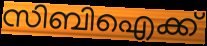
സിബിഐക്ക്